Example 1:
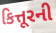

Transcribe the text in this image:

કિત્તૂરની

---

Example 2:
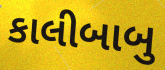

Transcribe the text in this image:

કાલીબાબુ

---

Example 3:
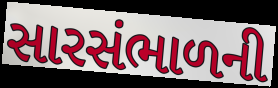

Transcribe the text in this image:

સારસંભાળની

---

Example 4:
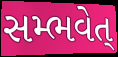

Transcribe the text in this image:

સમ્ભવેત્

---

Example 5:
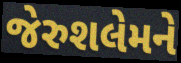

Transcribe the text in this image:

જેરુશલેમને